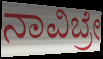
ನಾವಿಬ್ರೇ